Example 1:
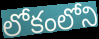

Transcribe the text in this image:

లోకంలోని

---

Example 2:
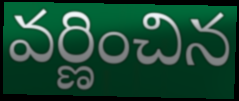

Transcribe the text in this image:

వర్ణించిన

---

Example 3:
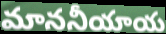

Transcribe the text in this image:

మాననీయాయ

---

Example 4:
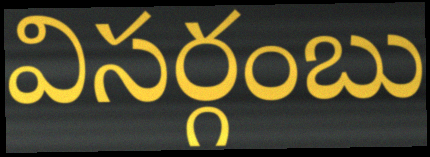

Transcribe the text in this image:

విసర్గంబు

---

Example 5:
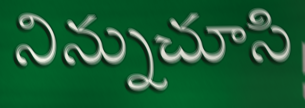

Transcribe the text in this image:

నిన్నుచూసి